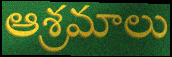
ఆశ్రమాలు